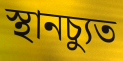
স্থানচ্যুত